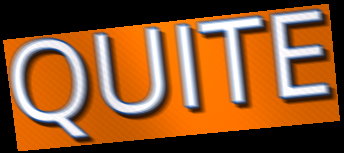
QUITE